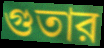
গুতার